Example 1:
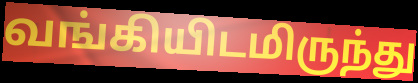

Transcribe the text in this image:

வங்கியிடமிருந்து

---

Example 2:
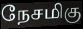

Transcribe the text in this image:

நேசமிகு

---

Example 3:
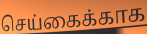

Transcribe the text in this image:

செய்கைக்காக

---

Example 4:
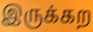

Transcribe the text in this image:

இருக்கற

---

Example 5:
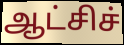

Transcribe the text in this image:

ஆட்சிச்